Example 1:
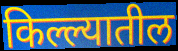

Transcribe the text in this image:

किल्ल्यातील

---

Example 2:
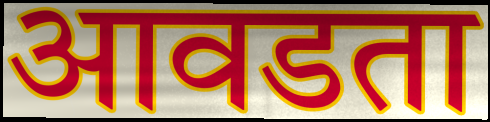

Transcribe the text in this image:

आवडता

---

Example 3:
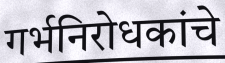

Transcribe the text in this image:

गर्भनिरोधकांचे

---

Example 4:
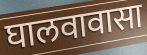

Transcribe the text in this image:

घालवावासा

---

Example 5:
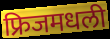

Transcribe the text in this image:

फ्रिजमधली